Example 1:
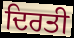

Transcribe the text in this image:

ਦਿਰਤੀ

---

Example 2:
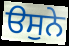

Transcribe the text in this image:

ੳਸੁਨੇ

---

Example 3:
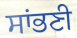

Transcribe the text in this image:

ਸਾਂਭਣੀ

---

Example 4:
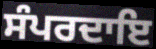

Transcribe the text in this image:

ਸੰਪਰਦਾਇ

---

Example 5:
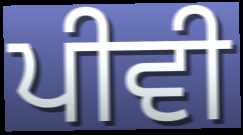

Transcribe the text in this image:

ਪੀਵੀ